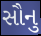
સૌનુ